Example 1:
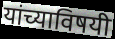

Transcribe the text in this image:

यांच्याविषयी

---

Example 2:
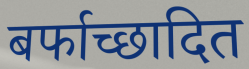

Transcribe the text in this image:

बर्फाच्छादित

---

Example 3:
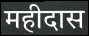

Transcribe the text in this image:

महीदास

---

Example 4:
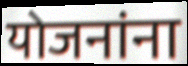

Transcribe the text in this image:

योजनांना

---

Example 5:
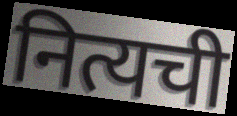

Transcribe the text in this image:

नित्यची